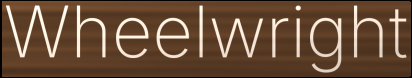
Wheelwright